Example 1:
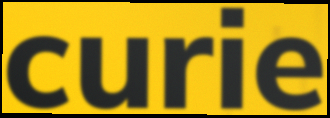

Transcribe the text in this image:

curie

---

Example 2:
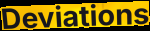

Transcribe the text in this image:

Deviations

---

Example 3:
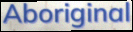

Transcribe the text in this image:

Aboriginal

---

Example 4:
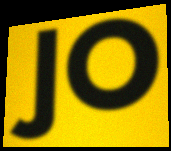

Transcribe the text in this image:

JO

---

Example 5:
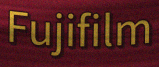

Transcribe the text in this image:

Fujifilm